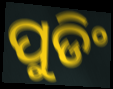
ପୁଡିଂ